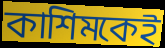
কাশিমকেই